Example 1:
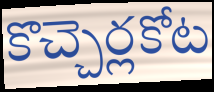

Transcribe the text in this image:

కొచ్చెర్లకోట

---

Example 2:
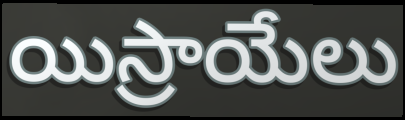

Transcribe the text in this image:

యిస్రాయేలు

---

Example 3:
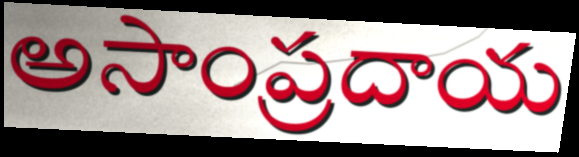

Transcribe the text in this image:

అసాంప్రదాయ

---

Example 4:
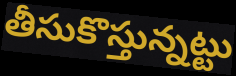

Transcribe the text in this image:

తీసుకొస్తున్నట్టు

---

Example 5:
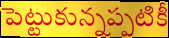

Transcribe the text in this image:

పెట్టుకున్నప్పటికీ